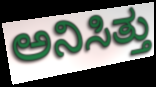
ಅನಿಸಿತ್ತು